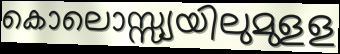
കൊലൊസ്സ്യയിലുമുളള